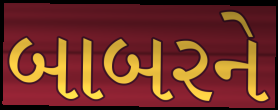
બાબરને